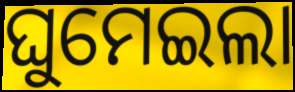
ଘୁମେଇଲା